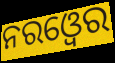
ନରଓ୍ବେର